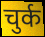
चुर्क